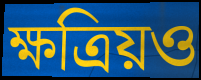
ক্ষত্রিয়ও